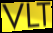
VLT